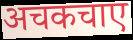
अचकचाए